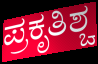
ಪ್ರಕೃತಿಶ್ಚ